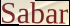
Sabar